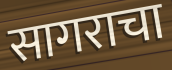
सागराचा